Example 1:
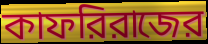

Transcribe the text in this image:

কাফরিরাজের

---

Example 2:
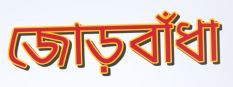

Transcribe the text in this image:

জোড়বাঁধা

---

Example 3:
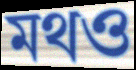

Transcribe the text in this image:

মথও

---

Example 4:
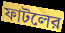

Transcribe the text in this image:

ফাটলের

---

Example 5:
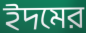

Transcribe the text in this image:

ইদমের